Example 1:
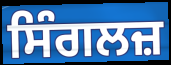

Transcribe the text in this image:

ਸਿੰਗਲਜ਼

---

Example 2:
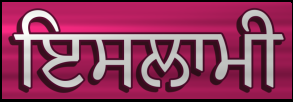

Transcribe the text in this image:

ਇਸਲਾਮੀ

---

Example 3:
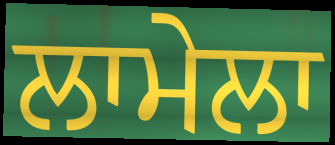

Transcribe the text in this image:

ਲਾਮੇਲਾ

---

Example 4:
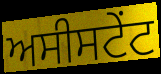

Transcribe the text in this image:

ਅਸੀਸਟੇਂਟ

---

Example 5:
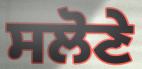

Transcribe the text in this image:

ਸਲੋਣੇ